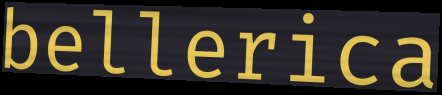
bellerica